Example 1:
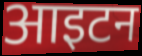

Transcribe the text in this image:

आइटन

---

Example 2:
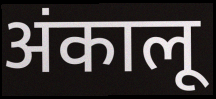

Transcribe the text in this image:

अंकालू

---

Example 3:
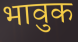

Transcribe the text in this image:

भावुक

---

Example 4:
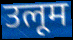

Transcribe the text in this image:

उलूम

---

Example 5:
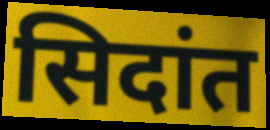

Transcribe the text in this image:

सिदांत